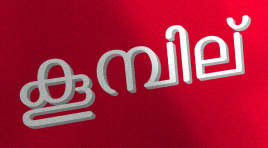
കൂമ്പില്